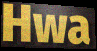
Hwa